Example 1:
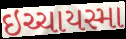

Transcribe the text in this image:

ઇચ્ચાયસ્મા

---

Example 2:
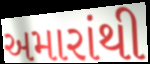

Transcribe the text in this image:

અમારાંથી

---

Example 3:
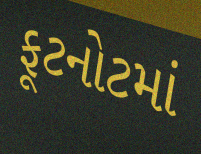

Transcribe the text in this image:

ફૂટનોટમાં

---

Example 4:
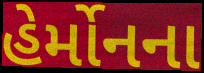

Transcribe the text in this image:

હેર્મોનના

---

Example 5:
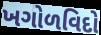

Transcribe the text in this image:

ખગોળવિદો